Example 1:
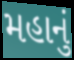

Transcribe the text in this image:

મહાનું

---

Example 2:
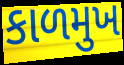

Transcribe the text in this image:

કાળમુખ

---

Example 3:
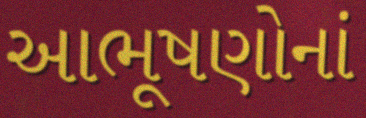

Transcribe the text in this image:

આભૂષણોનાં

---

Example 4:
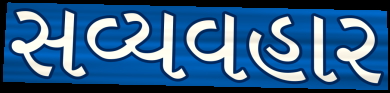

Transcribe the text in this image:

સવ્યવહાર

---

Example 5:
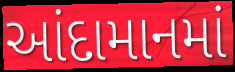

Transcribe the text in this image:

આંદામાનમાં